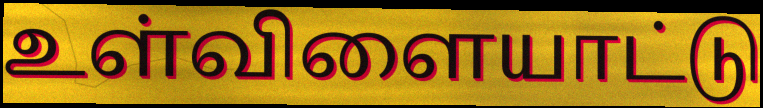
உள்விளையாட்டு